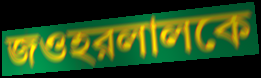
জওহরলালকে